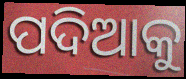
ପଦିଆକୁ